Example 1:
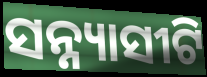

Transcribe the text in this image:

ସନ୍ନ୍ୟାସୀଟି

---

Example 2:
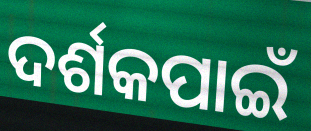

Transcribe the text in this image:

ଦର୍ଶକପାଇଁ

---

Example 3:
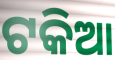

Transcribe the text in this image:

ଟକିଆ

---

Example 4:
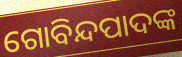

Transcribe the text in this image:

ଗୋବିନ୍ଦପାଦଙ୍କ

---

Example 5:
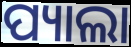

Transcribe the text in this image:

ପ୍ୟାଲା